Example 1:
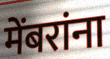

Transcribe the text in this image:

मेंबरांना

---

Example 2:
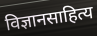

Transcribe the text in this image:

विज्ञानसाहित्य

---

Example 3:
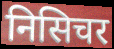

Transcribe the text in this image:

निसिचर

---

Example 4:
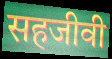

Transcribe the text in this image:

सहजीवी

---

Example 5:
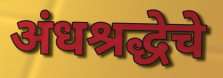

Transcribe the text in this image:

अंधश्रद्धेचे